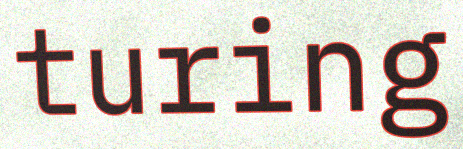
turing